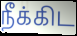
நீக்கிட